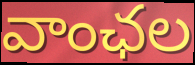
వాంఛల